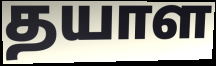
தயாள